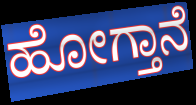
ಹೋಗ್ತಾನೆ